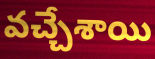
వచ్చేశాయి